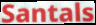
Santals